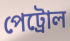
পেট্ৰোল